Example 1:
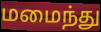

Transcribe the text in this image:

மமைந்து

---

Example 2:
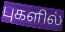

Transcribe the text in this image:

புகளில்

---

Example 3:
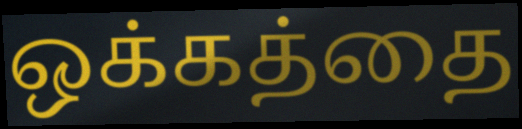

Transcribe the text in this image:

ஒக்கத்தை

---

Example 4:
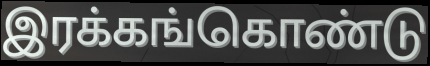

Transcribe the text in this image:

இரக்கங்கொண்டு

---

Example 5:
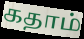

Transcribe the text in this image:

கதாம்